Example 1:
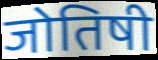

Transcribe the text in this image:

जोतिषी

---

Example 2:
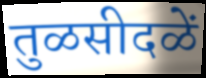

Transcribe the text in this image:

तुळसीदळें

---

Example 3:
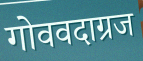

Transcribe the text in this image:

गोववदाग्रज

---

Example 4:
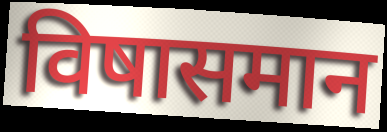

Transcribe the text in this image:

विषासमान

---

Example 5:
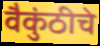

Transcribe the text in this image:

वैकुंठीचे